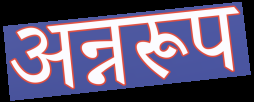
अन्नरूप